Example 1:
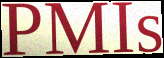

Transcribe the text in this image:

PMIs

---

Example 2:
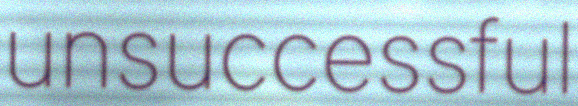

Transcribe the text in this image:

unsuccessful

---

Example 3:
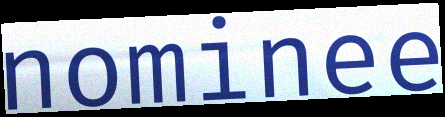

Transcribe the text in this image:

nominee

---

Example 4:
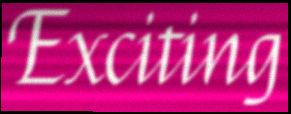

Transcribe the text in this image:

Exciting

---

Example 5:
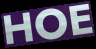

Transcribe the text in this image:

HOE